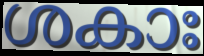
ശകാഃ